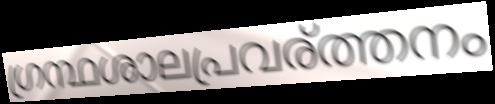
ഗ്രന്ഥശാലപ്രവര്ത്തനം